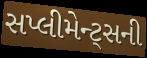
સપ્લીમેન્ટ્સની